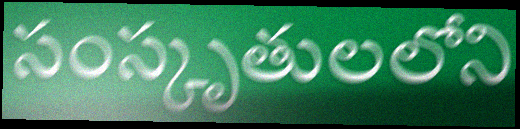
సంస్కృతులలోని